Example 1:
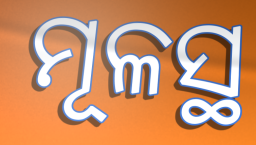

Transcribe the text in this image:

ମୂଳସ୍ଥ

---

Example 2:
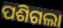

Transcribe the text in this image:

ପଶିଗଲା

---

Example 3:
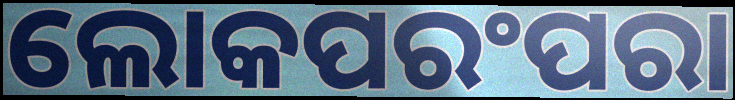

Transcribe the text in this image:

ଲୋକପରଂପରା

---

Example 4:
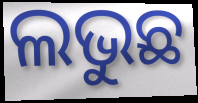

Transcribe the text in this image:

ଲଭୁଛ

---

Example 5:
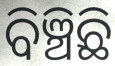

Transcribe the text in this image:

ବିଞ୍ଚିଛି